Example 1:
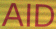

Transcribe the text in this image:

AID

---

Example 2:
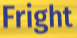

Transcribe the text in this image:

Fright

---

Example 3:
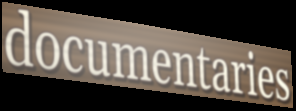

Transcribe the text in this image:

documentaries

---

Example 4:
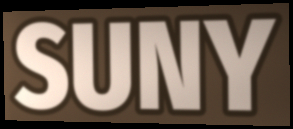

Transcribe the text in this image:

SUNY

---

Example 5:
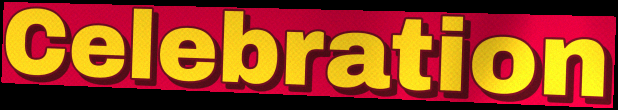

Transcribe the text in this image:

Celebration